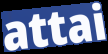
attai